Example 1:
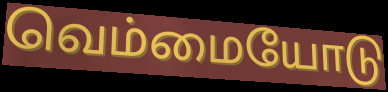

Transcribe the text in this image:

வெம்மையோடு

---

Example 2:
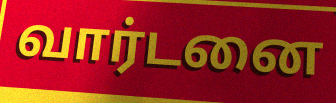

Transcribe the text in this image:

வார்டனை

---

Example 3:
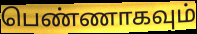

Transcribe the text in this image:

பெண்ணாகவும்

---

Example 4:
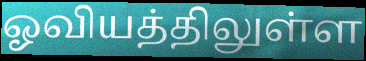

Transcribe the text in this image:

ஓவியத்திலுள்ள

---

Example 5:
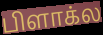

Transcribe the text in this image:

பிளாக்ல